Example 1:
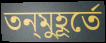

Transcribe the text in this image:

তন্‌মুহূর্তে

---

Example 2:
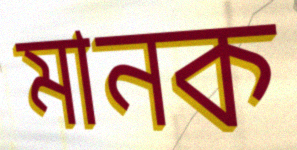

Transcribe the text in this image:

মানক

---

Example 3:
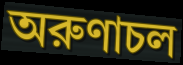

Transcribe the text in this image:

অরুণাচল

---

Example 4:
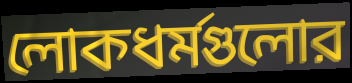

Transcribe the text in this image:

লোকধর্মগুলোর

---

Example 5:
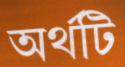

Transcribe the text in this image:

অর্থটি